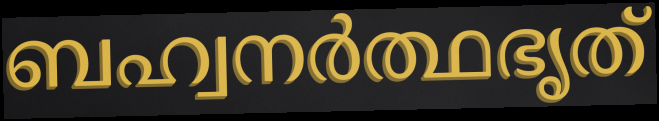
ബഹ്വനർത്ഥഭൃത്